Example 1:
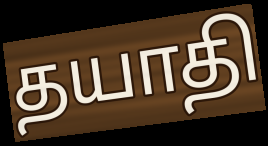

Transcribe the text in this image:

தயாதி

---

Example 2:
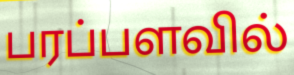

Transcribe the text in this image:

பரப்பளவில்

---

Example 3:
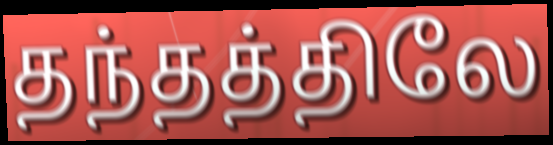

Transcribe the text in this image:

தந்தத்திலே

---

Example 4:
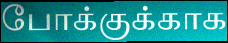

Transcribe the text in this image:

போக்குக்காக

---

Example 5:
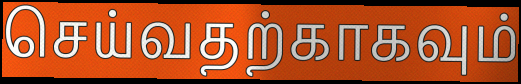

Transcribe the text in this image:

செய்வதற்காகவும்